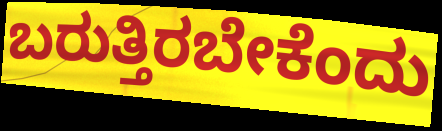
ಬರುತ್ತಿರಬೇಕೆಂದು